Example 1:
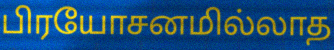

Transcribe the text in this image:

பிரயோசனமில்லாத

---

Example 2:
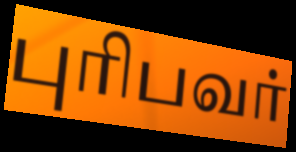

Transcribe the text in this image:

புரிபவர்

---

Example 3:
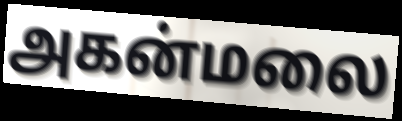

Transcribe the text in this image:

அகன்மலை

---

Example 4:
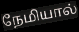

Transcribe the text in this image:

நேமியால்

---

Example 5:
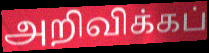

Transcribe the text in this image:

அறிவிக்கப்